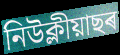
নিউক্লীয়াছৰ